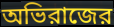
অভিরাজের